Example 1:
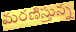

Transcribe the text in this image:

మరణిస్తున్న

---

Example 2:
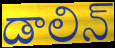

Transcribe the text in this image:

డాలిన్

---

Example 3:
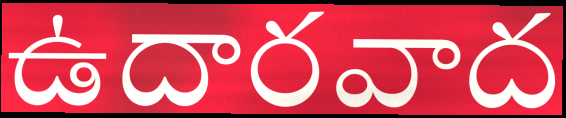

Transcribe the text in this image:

ఉదారవాద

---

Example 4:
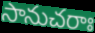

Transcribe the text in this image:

సానుచరాః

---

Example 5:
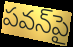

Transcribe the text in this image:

పవన్‌పై